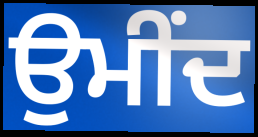
ਉਮੀਂਦ